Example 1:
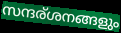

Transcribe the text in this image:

സന്ദര്ശനങ്ങളും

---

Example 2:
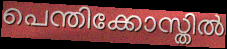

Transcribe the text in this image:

പെന്തിക്കോസ്തിൽ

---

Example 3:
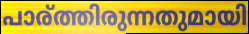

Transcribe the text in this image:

പാര്ത്തിരുന്നതുമായി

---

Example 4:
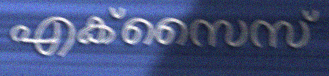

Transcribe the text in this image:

എക്‌സൈസ്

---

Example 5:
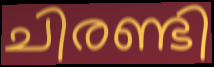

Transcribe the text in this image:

ചിരണ്ടി